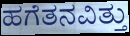
ಹಗೆತನವಿತ್ತು